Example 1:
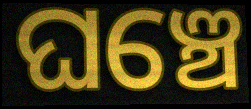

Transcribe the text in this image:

ଘଞ୍ଚେ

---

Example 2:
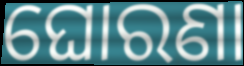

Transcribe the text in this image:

ଘୋରଣା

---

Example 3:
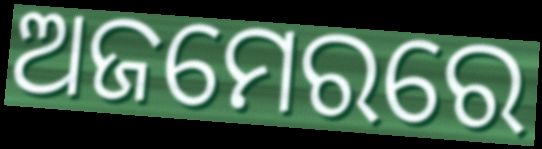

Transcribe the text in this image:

ଅଜମେରରେ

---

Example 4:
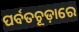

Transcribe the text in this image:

ପର୍ବତଚୂଡ଼ାରେ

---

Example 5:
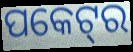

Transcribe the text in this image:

ପକେଟ୍‌ର